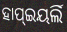
ହାପ୍ଇୟର୍ଲି